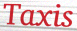
Taxis